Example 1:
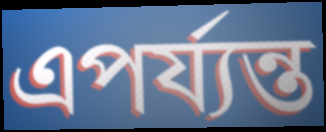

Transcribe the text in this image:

এপর্য্যন্ত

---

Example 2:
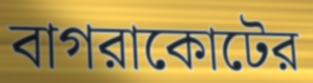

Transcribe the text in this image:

বাগরাকোটের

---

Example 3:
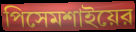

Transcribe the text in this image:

পিসেমশাইয়ের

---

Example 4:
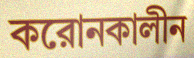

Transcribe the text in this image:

করোনকালীন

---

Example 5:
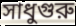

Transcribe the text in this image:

সাধুগুরু